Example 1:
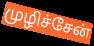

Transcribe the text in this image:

முழிச்சேன்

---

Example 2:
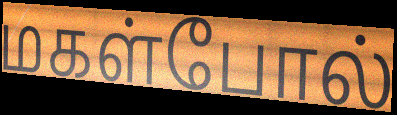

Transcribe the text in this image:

மகள்போல்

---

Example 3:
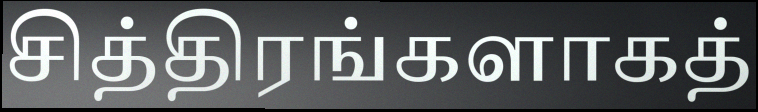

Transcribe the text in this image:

சித்திரங்களாகத்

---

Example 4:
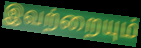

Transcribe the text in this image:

இவற்றையும்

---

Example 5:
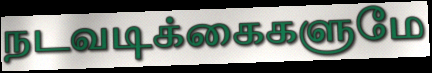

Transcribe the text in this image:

நடவடிக்கைகளுமே